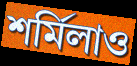
শর্মিলাও